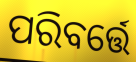
ପରିବର୍ତ୍ତେ